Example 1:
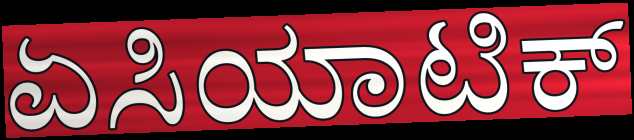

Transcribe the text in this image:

ಏಸಿಯಾಟಿಕ್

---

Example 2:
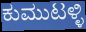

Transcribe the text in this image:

ಕುಮುಟಳ್ಳಿ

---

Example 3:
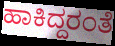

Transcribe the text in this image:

ಹಾಕಿದ್ದರಂತೆ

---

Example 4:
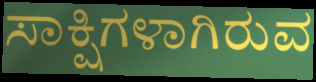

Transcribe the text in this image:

ಸಾಕ್ಷಿಗಳಾಗಿರುವ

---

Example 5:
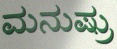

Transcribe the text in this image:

ಮನುಷ್ರು